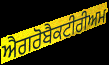
ਐਗਰੋਬੈਕਟੀਰੀਅਮ